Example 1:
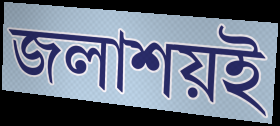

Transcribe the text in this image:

জলাশয়ই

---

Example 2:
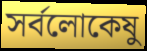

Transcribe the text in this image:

সর্বলোকেষু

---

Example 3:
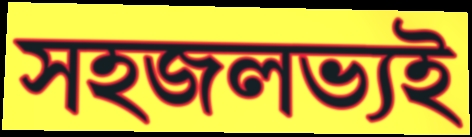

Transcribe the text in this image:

সহজলভ্যই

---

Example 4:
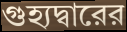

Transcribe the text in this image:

গুহ্যদ্বারের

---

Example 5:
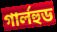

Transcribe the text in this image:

গার্লহুড